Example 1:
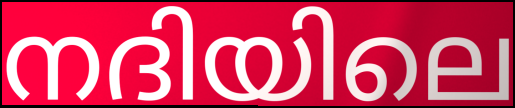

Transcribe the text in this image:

നദിയിലെ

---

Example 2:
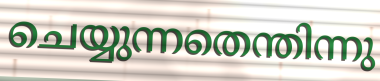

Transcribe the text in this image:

ചെയ്യുന്നതെന്തിന്നു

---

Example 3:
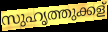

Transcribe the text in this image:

സുഹൃത്തുക്കള്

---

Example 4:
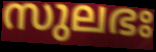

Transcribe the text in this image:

സുലഭഃ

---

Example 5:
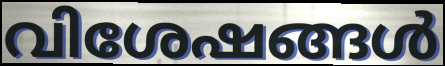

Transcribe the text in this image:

വിശേഷങ്ങൾ